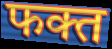
फक्‍त